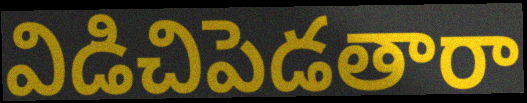
విడిచిపెడతారా